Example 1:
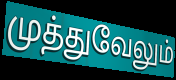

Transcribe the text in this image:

முத்துவேலும்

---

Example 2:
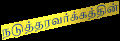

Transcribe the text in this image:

நடுத்தரவர்க்கத்தின்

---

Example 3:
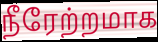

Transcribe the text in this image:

நீரேற்றமாக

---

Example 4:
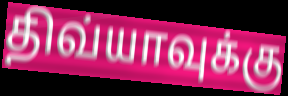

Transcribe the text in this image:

திவ்யாவுக்கு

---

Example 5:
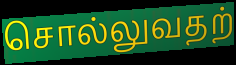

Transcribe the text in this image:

சொல்லுவதற்